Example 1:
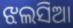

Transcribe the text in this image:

ଝଲସିଆ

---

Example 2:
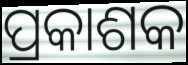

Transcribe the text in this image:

ପ୍ରକାଶକ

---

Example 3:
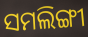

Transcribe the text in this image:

ସମଲିଙ୍ଗୀ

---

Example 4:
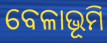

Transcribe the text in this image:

ବେଳାଭୂମି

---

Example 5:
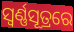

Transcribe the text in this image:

ସ୍ୱର୍ଣ୍ଣସୂତ୍ରରେ